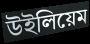
উইলিয়েম